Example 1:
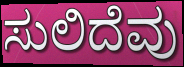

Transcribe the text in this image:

ಸುಲಿದೆವು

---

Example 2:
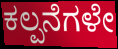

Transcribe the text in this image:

ಕಲ್ಪನೆಗಳೇ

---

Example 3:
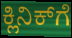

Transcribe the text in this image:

ಕ್ಲಿನಿಕ್‍ಗೆ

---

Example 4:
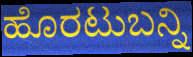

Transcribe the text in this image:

ಹೊರಟುಬನ್ನಿ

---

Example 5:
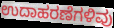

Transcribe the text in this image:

ಉದಾಹರಣೆಗಳಿವು